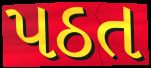
પઠત